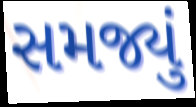
સમજ્યું